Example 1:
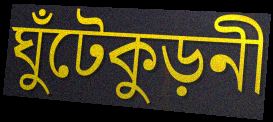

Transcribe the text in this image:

ঘুঁটেকুড়নী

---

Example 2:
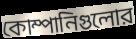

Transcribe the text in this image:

কোম্পানিগুলোর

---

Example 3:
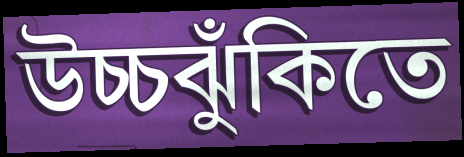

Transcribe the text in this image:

উচ্চঝুঁকিতে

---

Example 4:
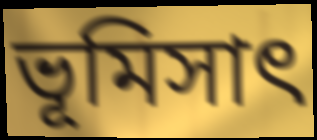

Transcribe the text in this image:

ভূমিসাৎ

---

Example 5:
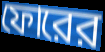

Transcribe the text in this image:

ফোরের